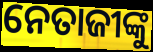
ନେତାଜୀଙ୍କୁ